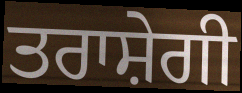
ਤਰਾਸ਼ੇਗੀ